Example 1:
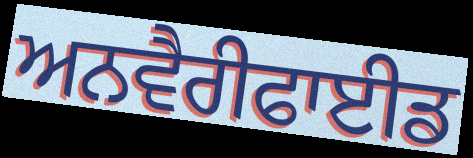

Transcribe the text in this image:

ਅਨਵੈਰੀਫਾਈਡ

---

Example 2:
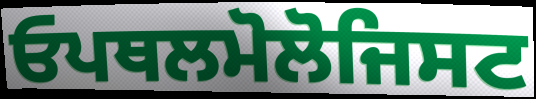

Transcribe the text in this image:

ਓਪਥਲਮੋਲੋਜਿਸਟ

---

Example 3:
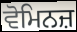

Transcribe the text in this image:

ਵੋਮਿਨਜ਼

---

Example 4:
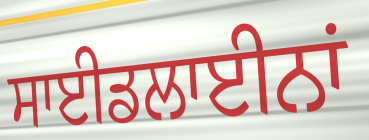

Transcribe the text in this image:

ਸਾਈਡਲਾਈਨਾਂ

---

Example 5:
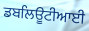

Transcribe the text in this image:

ਡਬਲਿਊਟੀਆਈ